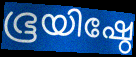
ഭൂയിഷ്ഠേ